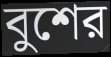
বুশের